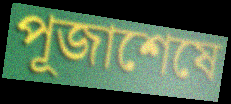
পূজাশেষে